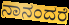
ನಾನಂದರೆ